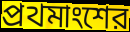
প্রথমাংশের